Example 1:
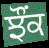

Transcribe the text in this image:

ਝੌਂਕ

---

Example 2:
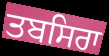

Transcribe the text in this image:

ਤਬਸਿਰਾ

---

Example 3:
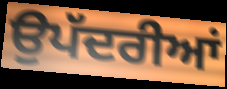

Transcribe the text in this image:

ਉਪੱਦਰੀਆਂ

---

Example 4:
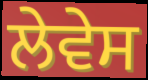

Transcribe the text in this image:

ਲੇਵੇਸ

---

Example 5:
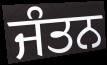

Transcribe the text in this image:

ਜੰਤਨ